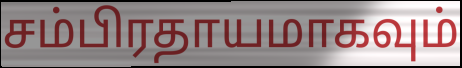
சம்பிரதாயமாகவும்